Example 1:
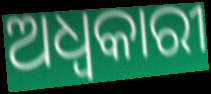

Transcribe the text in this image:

ଅଧ୍ବକାରୀ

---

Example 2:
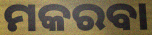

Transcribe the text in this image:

ମକରବା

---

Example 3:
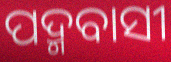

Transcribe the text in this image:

ପଦ୍ମବାସୀ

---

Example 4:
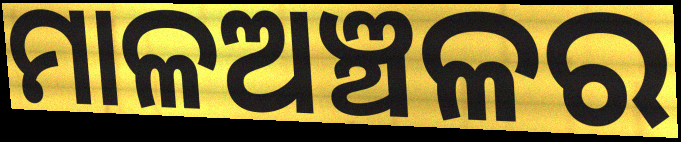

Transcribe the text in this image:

ମାଳଅଞ୍ଚଳର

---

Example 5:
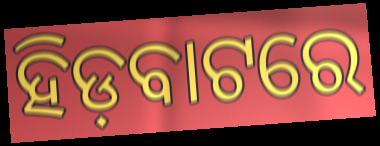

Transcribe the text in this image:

ହିଡ଼ବାଟରେ